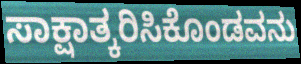
ಸಾಕ್ಷಾತ್ಕರಿಸಿಕೊಂಡವನು